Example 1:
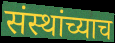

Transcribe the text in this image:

संस्थांच्याच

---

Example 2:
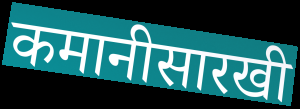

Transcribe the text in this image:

कमानीसारखी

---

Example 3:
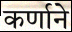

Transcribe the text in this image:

कर्णाने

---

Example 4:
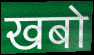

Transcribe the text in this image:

खबो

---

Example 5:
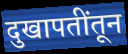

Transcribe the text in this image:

दुखापतींतून